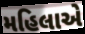
મહિલાએ